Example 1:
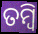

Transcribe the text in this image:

ତମ୍ବି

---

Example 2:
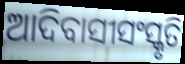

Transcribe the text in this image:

ଆଦିବାସୀସଂସ୍କୃତି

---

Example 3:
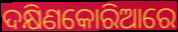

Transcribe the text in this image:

ଦକ୍ଷିଣକୋରିଆରେ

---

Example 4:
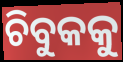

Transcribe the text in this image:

ଚିବୁକକୁ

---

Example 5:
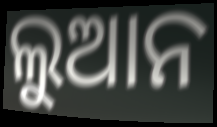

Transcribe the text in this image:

ଲୁଆନ